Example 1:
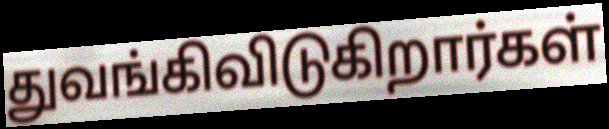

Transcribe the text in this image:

துவங்கிவிடுகிறார்கள்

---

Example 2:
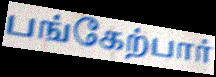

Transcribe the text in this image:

பங்கேற்பார்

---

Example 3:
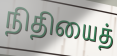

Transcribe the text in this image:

நிதியைத்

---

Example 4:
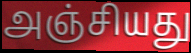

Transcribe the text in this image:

அஞ்சியது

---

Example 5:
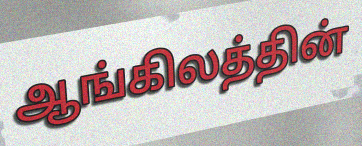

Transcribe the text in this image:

ஆங்கிலத்தின்